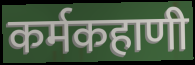
कर्मकहाणी